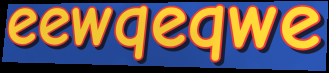
eewqeqwe